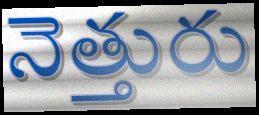
నెత్తురు